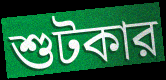
শুটকার